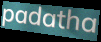
padatha